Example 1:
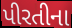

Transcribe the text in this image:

પીરતીના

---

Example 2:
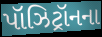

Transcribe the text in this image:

પૉઝિટ્રૉનના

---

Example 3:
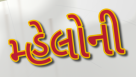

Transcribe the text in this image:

મ્હેલોની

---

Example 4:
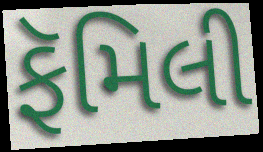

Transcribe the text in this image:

ફૅમિલી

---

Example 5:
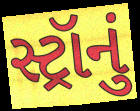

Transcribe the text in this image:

સ્ટ્રૉનું